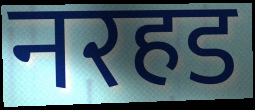
नरहड